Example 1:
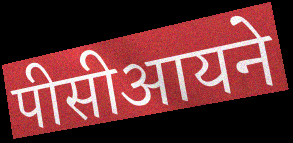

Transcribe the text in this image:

पीसीआयने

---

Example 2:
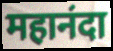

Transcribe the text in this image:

महानंदा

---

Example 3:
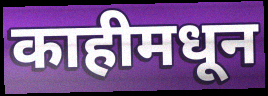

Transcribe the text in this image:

काहीमधून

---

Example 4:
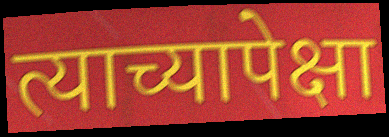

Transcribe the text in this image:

त्याच्यापेक्षा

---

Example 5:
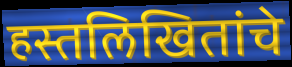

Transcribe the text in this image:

हस्तलिखितांचे